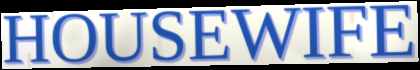
HOUSEWIFE